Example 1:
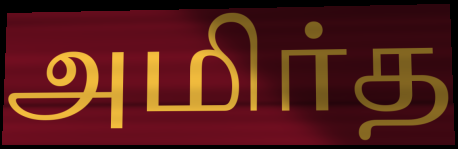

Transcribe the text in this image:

அமிர்த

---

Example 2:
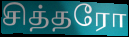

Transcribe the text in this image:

சித்தரோ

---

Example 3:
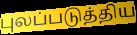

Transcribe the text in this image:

புலப்படுத்திய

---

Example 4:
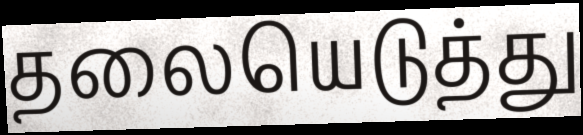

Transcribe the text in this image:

தலையெடுத்து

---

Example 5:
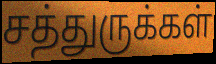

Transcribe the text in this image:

சத்துருக்கள்